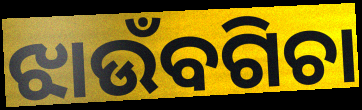
ଝାଉଁବଗିଚା